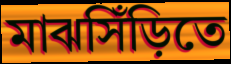
মাঝসিঁড়িতে